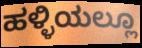
ಹಳ್ಳಿಯಲ್ಲೂ